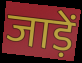
जाड़ें